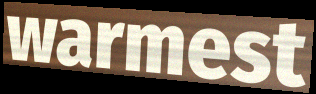
warmest